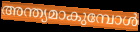
അന്ത്യമാകുമ്പോൾ